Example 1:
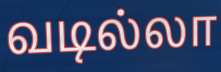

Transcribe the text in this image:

வடில்லா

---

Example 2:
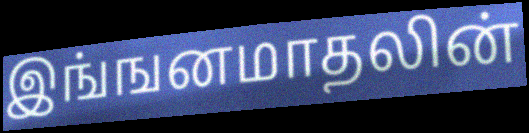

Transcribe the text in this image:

இங்ஙனமாதலின்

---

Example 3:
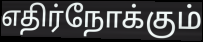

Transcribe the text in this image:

எதிர்நோக்கும்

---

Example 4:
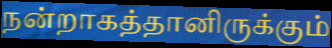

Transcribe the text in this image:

நன்றாகத்தானிருக்கும்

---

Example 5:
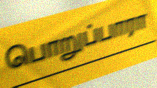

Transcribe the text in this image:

பொறுப்பாரா